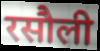
रसौली